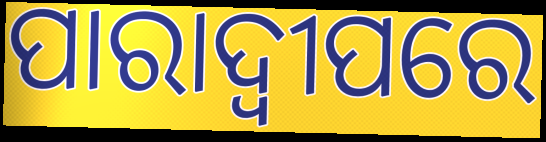
ପାରାଦ୍ବୀପରେ